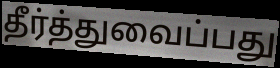
தீர்த்துவைப்பது